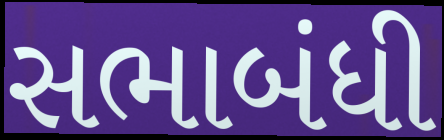
સભાબંધી